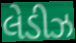
લેડીઝ